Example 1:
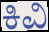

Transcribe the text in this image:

ಕಿವಿ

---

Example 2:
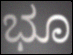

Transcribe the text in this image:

ಭೂ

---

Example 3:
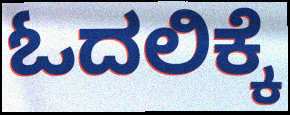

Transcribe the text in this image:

ಓದಲಿಕ್ಕೆ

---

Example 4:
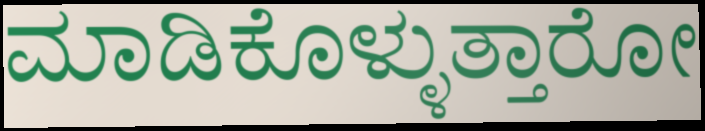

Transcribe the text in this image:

ಮಾಡಿಕೊಳ್ಳುತ್ತಾರೋ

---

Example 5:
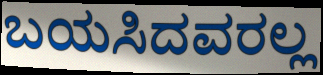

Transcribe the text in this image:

ಬಯಸಿದವರಲ್ಲ